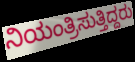
ನಿಯಂತ್ರಿಸುತ್ತಿದ್ದರು